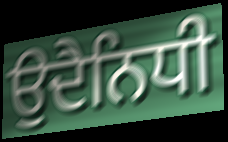
ਉਦੈਨਿਧੀ